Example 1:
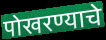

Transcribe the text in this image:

पोखरण्याचे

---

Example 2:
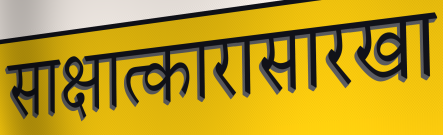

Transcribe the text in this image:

साक्षात्कारासारखा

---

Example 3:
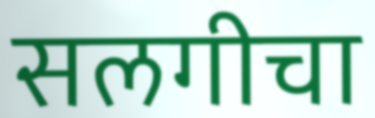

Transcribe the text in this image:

सलगीचा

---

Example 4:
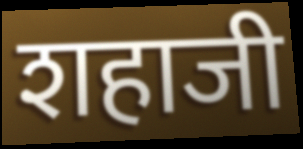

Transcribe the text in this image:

शहाजी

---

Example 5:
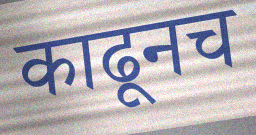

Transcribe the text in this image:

काढूनच